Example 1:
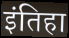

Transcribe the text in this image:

इंतिहा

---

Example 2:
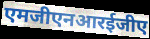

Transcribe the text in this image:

एमजीएनआरईजीए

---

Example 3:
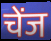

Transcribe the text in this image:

चेंज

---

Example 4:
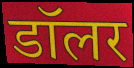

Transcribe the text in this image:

डॉलर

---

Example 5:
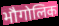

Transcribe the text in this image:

भौगोलिक